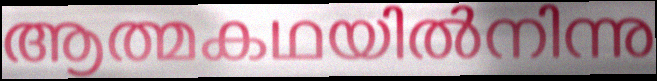
ആത്മകഥയിൽനിന്നു